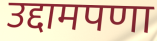
उद्दामपणा